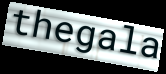
thegala